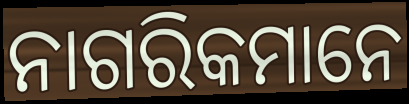
ନାଗରିକମାନେ